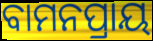
ବାମନପ୍ରାୟ